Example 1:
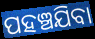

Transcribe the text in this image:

ପହଞ୍ଚଯିବା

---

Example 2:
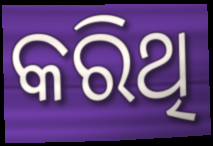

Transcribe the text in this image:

କରିଥି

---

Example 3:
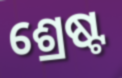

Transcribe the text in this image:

ଶ୍ରେଷ୍ଟ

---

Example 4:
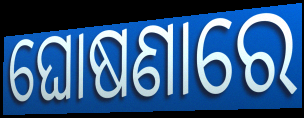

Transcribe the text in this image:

ଘୋଷଣାରେ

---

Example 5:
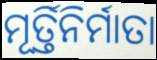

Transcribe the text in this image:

ମୂର୍ତ୍ତିନିର୍ମାତା